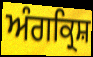
ਅੰਗਕ੍ਰਿਸ਼